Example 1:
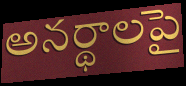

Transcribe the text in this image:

అనర్థాలపై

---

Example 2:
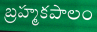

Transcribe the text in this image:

బ్రహ్మకపాలం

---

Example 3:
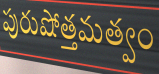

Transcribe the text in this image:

పురుషోత్తమత్వం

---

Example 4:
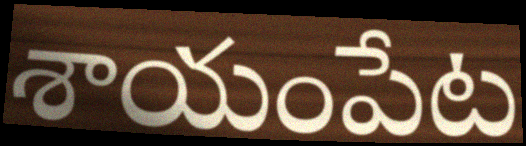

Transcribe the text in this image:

శాయంపేట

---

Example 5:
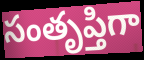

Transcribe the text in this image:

సంతృప్తిగా